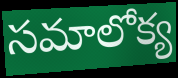
సమాలోక్య